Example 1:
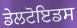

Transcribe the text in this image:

ਡੇਲਟੋਇਡਸ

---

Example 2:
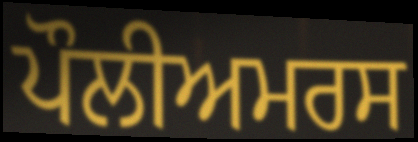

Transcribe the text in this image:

ਪੌਲੀਅਮਰਸ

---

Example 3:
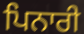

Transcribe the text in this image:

ਪਿਨਾਰੀ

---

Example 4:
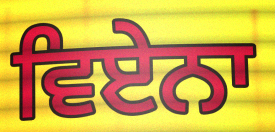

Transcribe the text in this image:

ਵਿਏਨਾ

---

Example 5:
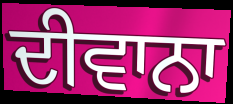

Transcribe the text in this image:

ਦੀਵਾਨਾ